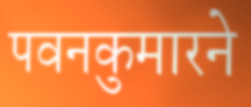
पवनकुमारने